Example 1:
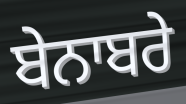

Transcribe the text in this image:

ਬੇਨਾਬਰੇ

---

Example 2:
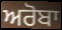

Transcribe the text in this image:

ਅਰੋਬਾ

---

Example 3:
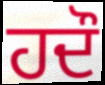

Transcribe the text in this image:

ਹਦੌ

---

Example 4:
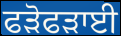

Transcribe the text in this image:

ਫੜੋਫੜਾਈ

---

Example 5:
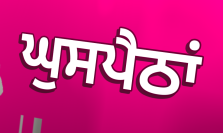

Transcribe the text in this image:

ਘੁਸਪੈਠਾਂ